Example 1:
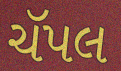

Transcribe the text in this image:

ચૅપલ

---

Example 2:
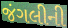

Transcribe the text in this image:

જંગલીની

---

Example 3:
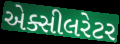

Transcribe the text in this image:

એક્સીલરેટર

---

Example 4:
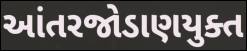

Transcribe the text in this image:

આંતરજોડાણયુક્ત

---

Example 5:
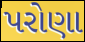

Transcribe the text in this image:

પરોણા